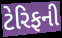
ટેરિફની